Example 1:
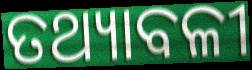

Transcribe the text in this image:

ତଥ୍ୟାବଳୀ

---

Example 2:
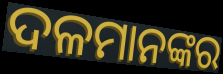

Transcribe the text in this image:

ଦଳମାନଙ୍କର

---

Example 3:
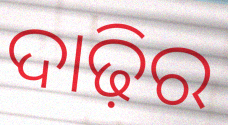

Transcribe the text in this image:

ଦାଢ଼ିର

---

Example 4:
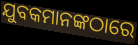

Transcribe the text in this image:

ଯୁବକମାନଙ୍କଠାରେ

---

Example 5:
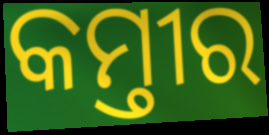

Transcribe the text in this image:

କମ୍ତୀର